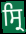
ਸ੍ਰਿ